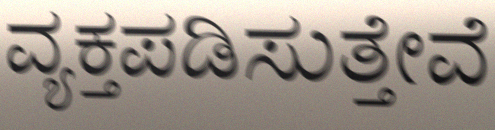
ವ್ಯಕ್ತಪಡಿಸುತ್ತೇವೆ